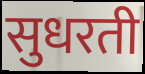
सुधरती